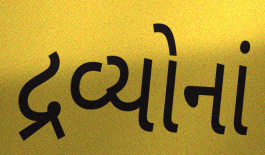
દ્રવ્યોનાં